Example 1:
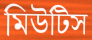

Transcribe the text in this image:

মিউটিস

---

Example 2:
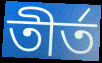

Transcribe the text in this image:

তীর্ত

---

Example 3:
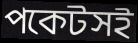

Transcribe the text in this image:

পকেটসই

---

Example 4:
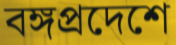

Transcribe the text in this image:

বঙ্গপ্রদেশে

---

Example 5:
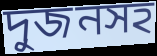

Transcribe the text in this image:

দুজনসহ